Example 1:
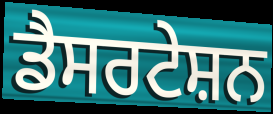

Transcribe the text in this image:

ਡੈਸਰਟੇਸ਼ਨ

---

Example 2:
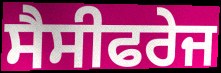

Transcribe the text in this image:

ਸੈਸੀਫਰੇਜ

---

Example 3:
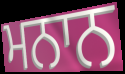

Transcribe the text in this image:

ਮਨਾਨ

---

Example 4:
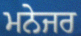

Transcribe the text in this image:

ਮਨੇਜਰ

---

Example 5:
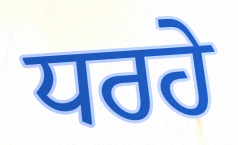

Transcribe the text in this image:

ਧਰਹੇ